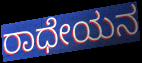
ರಾಧೇಯನ